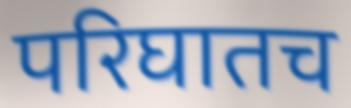
परिघातच